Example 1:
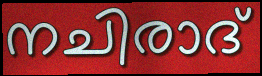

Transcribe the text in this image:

നചിരാദ്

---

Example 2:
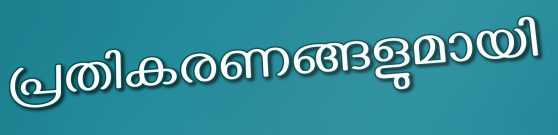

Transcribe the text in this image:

പ്രതികരണങ്ങളുമായി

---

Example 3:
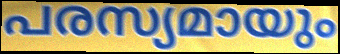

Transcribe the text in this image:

പരസ്യമായും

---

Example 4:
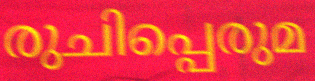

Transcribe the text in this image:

രുചിപ്പെരുമ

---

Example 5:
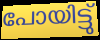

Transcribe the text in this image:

പോയിട്ടു്